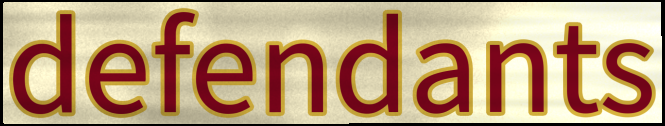
defendants